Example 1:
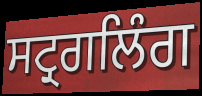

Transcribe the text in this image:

ਸਟ੍ਰਗਲਿੰਗ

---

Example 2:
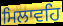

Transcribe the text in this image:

ਮਿਲਾਵਹਿ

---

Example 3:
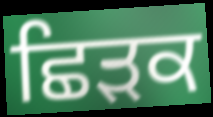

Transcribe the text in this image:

ਛਿੜਕ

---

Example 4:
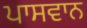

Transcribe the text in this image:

ਪਾਸਵਾਨ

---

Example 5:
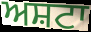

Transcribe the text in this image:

ਅਸ਼ਟਾ